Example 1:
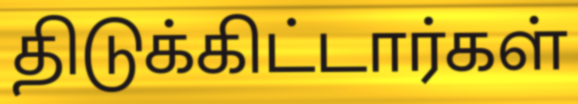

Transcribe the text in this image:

திடுக்கிட்டார்கள்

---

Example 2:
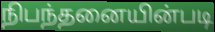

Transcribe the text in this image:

நிபந்தனையின்படி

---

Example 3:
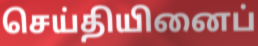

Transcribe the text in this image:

செய்தியினைப்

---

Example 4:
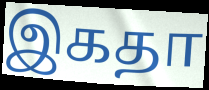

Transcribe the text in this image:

இகதா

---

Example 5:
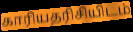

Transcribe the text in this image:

காரியதரிசியிடம்